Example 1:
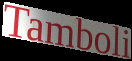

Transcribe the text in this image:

Tamboli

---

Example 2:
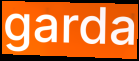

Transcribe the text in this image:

garda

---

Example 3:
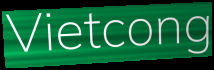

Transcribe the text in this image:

Vietcong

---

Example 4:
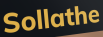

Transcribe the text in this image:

Sollathe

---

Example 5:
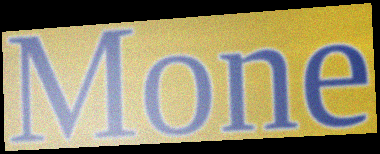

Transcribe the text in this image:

Mone